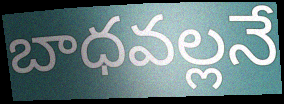
బాధవల్లనే